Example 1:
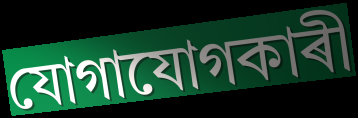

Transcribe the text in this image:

যোগাযোগকাৰী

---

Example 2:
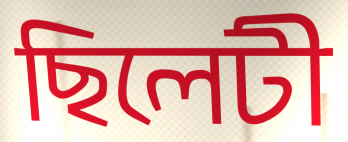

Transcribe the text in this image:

ছিলেটী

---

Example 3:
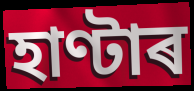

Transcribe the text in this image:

হাণ্টাৰ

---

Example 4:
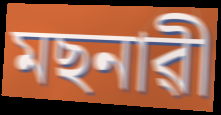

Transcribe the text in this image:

মছনাৱী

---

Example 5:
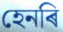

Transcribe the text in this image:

হেনৰি